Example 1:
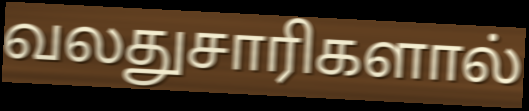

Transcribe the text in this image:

வலதுசாரிகளால்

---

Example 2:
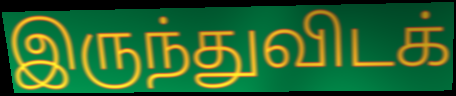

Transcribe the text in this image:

இருந்துவிடக்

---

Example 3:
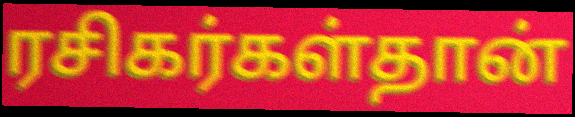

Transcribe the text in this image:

ரசிகர்கள்தான்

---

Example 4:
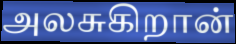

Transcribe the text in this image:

அலசுகிறான்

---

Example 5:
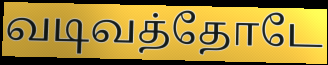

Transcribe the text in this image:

வடிவத்தோடே